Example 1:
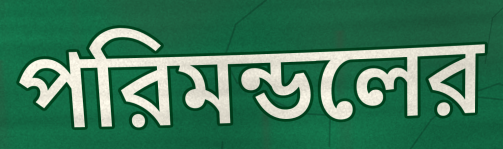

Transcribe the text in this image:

পরিমন্ডলের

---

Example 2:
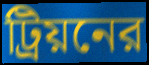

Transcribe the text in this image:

ট্রিয়নের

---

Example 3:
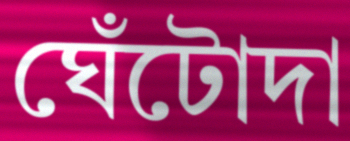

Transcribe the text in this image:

ঘেঁটোদা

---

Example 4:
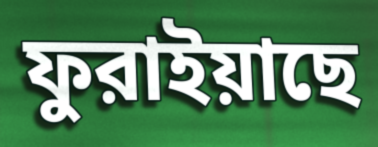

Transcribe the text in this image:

ফুরাইয়াছে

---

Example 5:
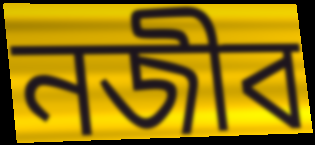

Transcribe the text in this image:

নজীব